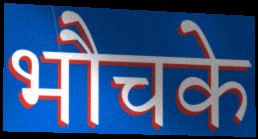
भौचके